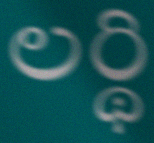
లర్థి